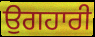
ਉਗਹਾਰੀ